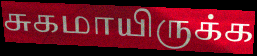
சுகமாயிருக்க